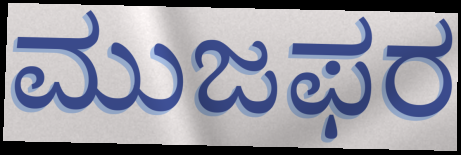
ಮುಜಫರ